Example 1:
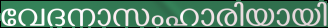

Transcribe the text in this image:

വേദനാസംഹാരിയായി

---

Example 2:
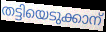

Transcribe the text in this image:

തട്ടിയെടുക്കാന്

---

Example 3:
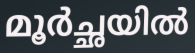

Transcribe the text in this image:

മൂർച്ഛയിൽ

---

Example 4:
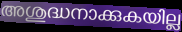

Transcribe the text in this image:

അശുദ്ധനാക്കുകയില്ല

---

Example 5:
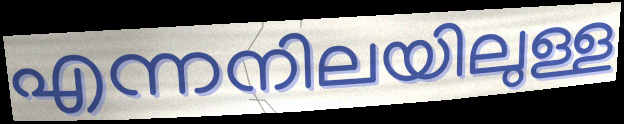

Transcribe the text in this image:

എന്നനിലയിലുള്ള